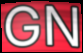
GN